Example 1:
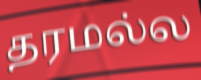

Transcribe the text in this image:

தரமல்ல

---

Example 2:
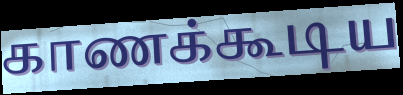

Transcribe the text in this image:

காணக்கூடிய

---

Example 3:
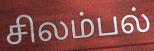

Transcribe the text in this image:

சிலம்பல்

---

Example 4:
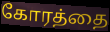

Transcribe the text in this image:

கோரத்தை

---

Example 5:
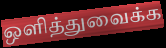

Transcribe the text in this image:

ஒளித்துவைக்க